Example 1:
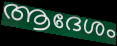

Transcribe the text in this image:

ആദേശം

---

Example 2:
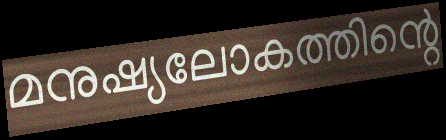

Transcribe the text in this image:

മനുഷ്യലോകത്തിന്റെ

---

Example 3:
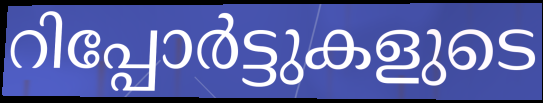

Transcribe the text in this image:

റിപ്പോർട്ടുകളുടെ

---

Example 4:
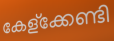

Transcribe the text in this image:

കേള്ക്കേണ്ടി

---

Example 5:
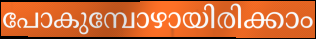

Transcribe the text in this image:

പോകുമ്പോഴായിരിക്കാം